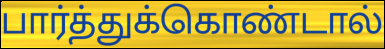
பார்த்துக்கொண்டால்